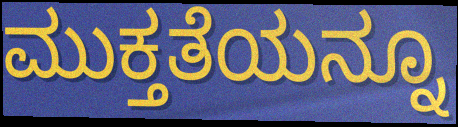
ಮುಕ್ತತೆಯನ್ನೂ